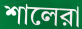
শালেরা